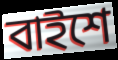
বাইশে